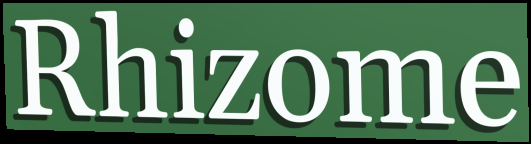
Rhizome